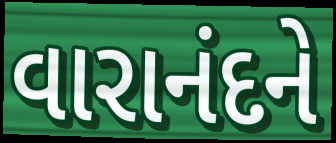
વારાનંદને